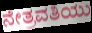
ನೇತ್ರವತಿಯು